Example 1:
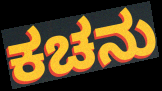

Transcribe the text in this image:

ಕಚನು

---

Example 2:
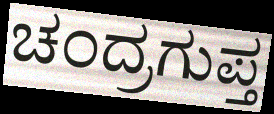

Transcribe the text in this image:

ಚಂದ್ರಗುಪ್ತ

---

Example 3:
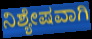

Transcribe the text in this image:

ನಿಶ್ಯೇಷವಾಗಿ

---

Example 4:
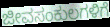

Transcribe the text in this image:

ಜೀವಸಂಕುಲಗಳಿಗೆ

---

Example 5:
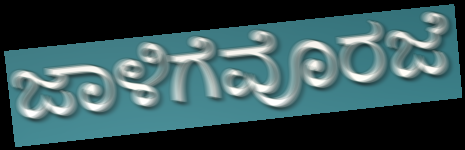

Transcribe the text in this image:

ಜಾಳಿಗೆವೊರಜೆ